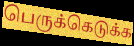
பெருக்கெடுக்க